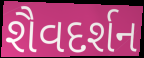
શૈવદર્શન